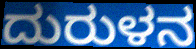
ದುರುಳನ